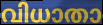
വിധാതാ